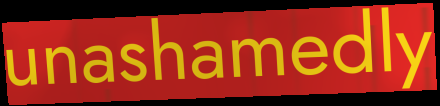
unashamedly